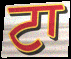
ਟਾ